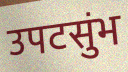
उपटसुंभ